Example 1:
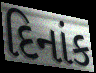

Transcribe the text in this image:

દિનાંક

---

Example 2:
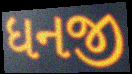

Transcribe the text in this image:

ધનજી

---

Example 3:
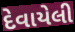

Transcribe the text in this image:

દેવાયેલી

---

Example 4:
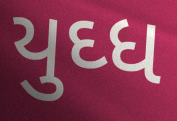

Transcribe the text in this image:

યુઘ્ધ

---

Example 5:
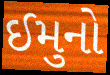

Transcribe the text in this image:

ઈમુનો